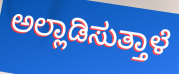
ಅಲ್ಲಾಡಿಸುತ್ತಾಳೆ